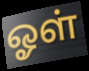
ஓள்